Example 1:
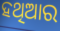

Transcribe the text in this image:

ହଥିଆର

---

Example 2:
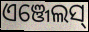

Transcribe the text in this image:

ଏଞ୍ଜେଲସ୍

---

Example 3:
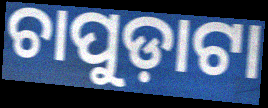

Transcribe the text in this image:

ଚାପୁଡ଼ାଟା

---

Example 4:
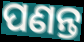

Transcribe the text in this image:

ପଣନ୍ତ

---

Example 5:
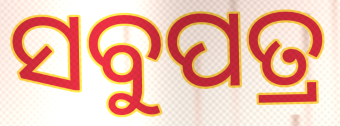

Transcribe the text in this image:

ସବୁପତ୍ର